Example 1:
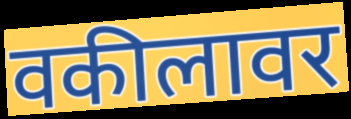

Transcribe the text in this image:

वकीलावर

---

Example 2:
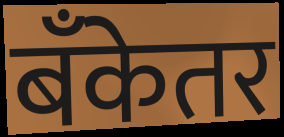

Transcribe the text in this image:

बँकेतर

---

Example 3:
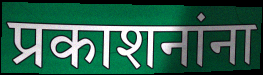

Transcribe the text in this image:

प्रकाशनांना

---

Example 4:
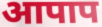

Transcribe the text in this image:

आपाप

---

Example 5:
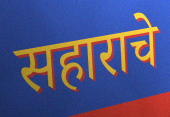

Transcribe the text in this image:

सहाराचे